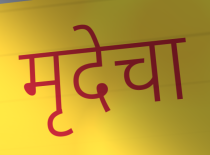
मृदेचा